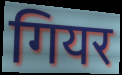
गियर